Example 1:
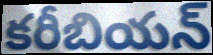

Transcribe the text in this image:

కరీబియన్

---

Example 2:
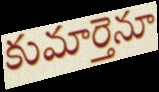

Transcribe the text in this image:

కుమార్తెనూ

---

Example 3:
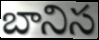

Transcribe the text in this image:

బానిస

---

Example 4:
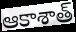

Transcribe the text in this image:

ఆకాశాత్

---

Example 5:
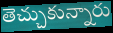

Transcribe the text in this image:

తెచ్చుకున్నారు